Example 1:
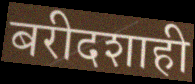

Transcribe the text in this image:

बरीदशाही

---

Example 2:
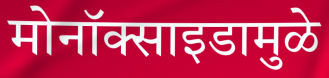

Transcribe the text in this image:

मोनॉक्साइडामुळे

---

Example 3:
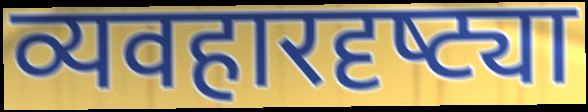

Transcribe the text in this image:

व्यवहारदृष्ट्या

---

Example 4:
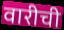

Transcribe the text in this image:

वारीची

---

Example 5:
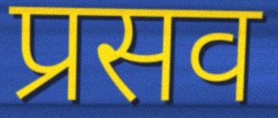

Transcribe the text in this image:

प्रसव